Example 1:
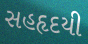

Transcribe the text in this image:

સહહૃદયી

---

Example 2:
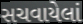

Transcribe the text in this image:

સચવાયેલાં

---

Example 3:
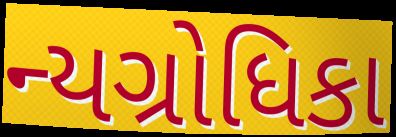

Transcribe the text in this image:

ન્યગ્રોધિકા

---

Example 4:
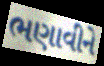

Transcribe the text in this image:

ભણાવીને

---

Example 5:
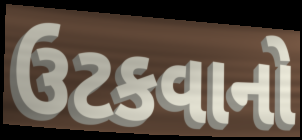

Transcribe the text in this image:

ઉટકવાનો